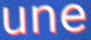
une